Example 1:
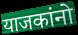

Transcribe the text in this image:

याजकांनो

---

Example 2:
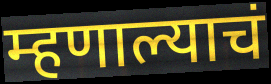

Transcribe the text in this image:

म्हणाल्याचं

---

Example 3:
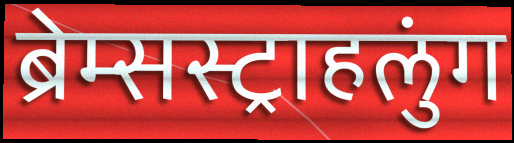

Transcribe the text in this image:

ब्रेम्सस्ट्राहलुंग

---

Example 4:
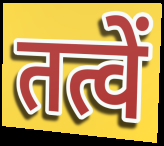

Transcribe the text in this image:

तत्वें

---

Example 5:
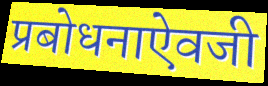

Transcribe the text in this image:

प्रबोधनाऐवजी